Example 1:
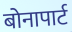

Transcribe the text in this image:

बोनापार्ट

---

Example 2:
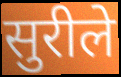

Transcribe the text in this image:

सुरीले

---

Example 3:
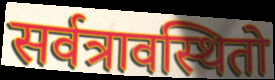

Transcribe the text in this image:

सर्वत्रावस्थितो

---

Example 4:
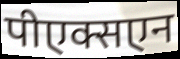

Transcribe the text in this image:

पीएक्सएन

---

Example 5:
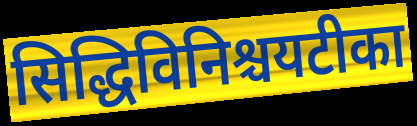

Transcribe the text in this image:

सिद्धिविनिश्चयटीका